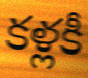
కళ్లకీ